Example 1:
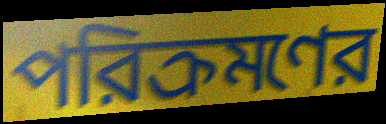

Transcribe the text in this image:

পরিক্রমণের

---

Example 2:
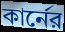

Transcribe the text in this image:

কার্নের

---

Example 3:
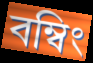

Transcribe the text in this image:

বম্বিং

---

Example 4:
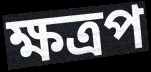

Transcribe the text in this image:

ক্ষত্রপ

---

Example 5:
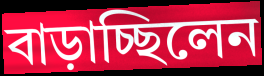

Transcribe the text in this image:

বাড়াচ্ছিলেন